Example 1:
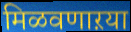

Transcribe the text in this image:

मिळवणाऱया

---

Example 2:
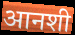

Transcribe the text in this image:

आनशी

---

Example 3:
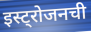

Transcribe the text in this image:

इस्ट्रोजनची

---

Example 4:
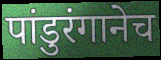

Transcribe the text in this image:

पांडुरंगानेच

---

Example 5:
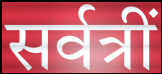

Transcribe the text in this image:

सर्वत्रीं